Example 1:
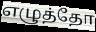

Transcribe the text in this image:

எழுத்தோ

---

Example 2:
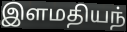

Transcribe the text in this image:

இளமதியந்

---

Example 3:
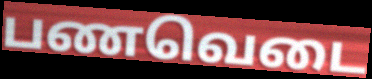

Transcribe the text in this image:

பணவெடை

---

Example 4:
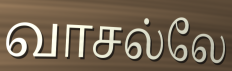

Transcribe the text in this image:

வாசல்லே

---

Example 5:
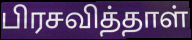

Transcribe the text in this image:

பிரசவித்தாள்